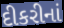
દીકરીનાં